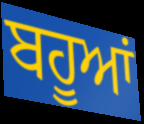
ਬਹੂਆਂ